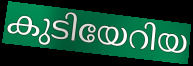
കുടിയേറിയ